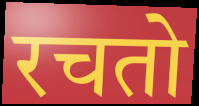
रचतो